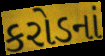
કરોડનાં